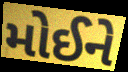
મોઈને